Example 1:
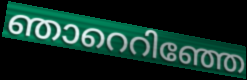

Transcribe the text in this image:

ഞാറെറിഞ്ഞേ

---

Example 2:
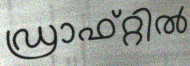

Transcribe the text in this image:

ഡ്രാഫ്റ്റിൽ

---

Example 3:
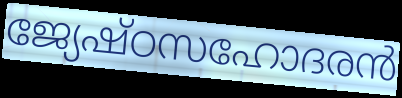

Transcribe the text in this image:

ജ്യേഷ്ഠസഹോദരൻ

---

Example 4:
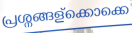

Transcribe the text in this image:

പ്രശ്നങ്ങള്ക്കൊക്കെ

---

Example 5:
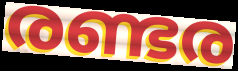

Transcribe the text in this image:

രണ്ടര